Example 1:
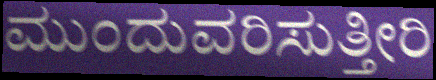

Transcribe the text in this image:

ಮುಂದುವರಿಸುತ್ತೀರಿ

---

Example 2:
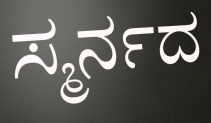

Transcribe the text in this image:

ಸ್ಮರ್ನದ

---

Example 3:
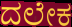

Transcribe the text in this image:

ದಲೇಕ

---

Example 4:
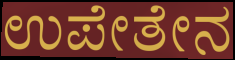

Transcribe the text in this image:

ಉಪೇತೇನ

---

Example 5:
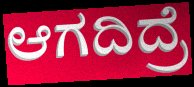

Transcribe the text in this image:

ಆಗದಿದ್ರೆ